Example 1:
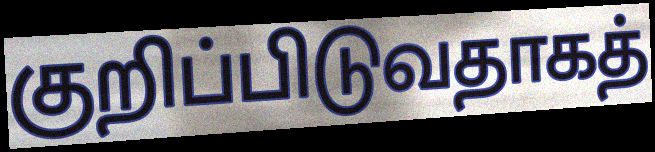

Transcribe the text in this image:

குறிப்பிடுவதாகத்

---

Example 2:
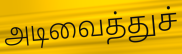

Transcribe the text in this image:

அடிவைத்துச்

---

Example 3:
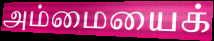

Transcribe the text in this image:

அம்மையைக்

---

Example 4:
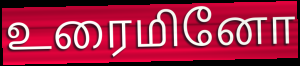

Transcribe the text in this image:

உரைமினோ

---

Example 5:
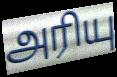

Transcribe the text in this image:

அரியு